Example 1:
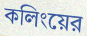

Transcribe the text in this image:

কলিংয়ের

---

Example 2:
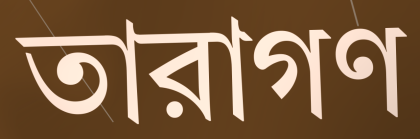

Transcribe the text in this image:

তারাগণ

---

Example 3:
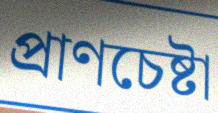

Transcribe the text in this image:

প্রাণচেষ্টা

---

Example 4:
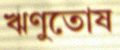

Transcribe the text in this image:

ঋণুতোষ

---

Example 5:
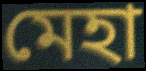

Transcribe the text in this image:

মেহা